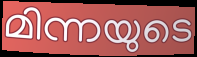
മിന്നയുടെ